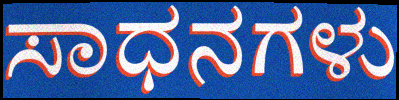
ಸಾಧನಗಳು